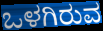
ಒಳಗಿರುವ